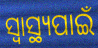
ସ୍ଵାସ୍ଥ୍ୟପାଇଁ